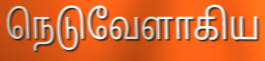
நெடுவேளாகிய